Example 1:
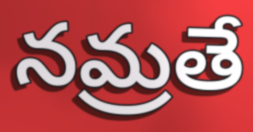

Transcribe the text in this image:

నమ్రతే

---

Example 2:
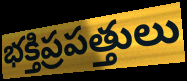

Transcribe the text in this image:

భక్తిప్రపత్తులు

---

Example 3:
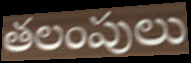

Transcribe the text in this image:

తలంపులు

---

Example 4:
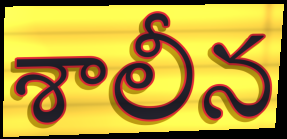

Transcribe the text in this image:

శాలీన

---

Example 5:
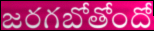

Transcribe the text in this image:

జరగబోతోందో